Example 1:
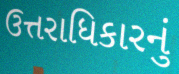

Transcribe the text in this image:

ઉત્તરાધિકારનું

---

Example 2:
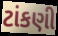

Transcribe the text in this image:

ટાંકણી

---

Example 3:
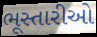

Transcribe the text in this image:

ભૂસ્તારીઓ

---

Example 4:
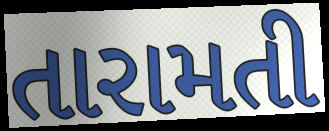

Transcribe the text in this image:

તારામતી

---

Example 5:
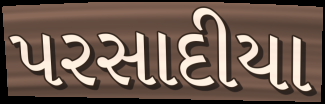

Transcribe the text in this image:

પરસાદીયા